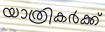
യാത്രികർക്ക്